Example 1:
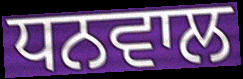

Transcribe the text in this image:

ਧਨਵਾਲ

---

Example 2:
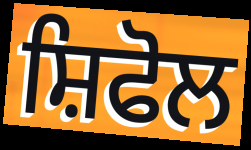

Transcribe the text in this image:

ਸ਼ਿਫੋਲ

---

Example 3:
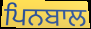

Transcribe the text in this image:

ਪਿਨਬਾਲ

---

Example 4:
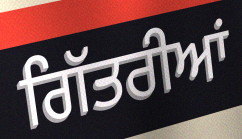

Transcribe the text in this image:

ਗਿੱਤਰੀਆਂ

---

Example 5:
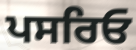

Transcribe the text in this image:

ਪਸਰਿਓ